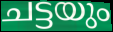
ചട്ടയും